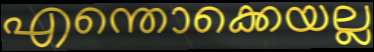
എന്തൊക്കെയല്ല